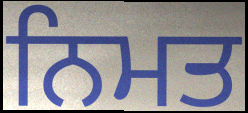
ਨਿਮਤ